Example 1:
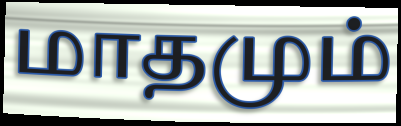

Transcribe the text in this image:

மாதமும்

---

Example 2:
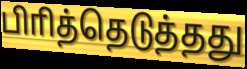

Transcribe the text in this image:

பிரித்தெடுத்தது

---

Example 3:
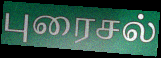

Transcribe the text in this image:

புரைசல்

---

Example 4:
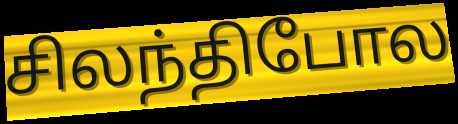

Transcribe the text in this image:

சிலந்திபோல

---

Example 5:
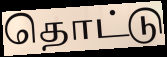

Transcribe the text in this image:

தொட்டு